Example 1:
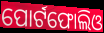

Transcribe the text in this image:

ପୋର୍ଟଫୋଲିଓ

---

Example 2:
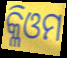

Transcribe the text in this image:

କ୍ଳିଓମ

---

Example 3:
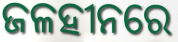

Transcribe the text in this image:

ଜଳହୀନରେ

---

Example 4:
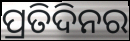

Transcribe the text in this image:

ପ୍ରତିଦିନର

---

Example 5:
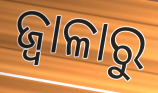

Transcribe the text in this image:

ଜ୍ଵାଳାରୁ